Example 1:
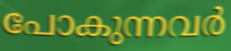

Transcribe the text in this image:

പോകുന്നവർ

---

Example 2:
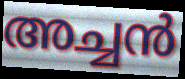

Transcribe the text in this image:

അച്ചൻ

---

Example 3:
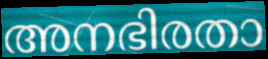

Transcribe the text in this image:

അനഭിരതാ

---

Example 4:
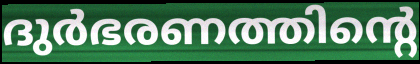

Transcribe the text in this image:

ദുർഭരണത്തിന്റെ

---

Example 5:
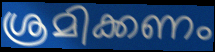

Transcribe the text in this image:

ശ്രമിക്കണം